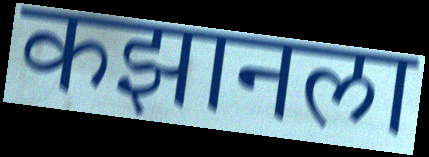
कझानला